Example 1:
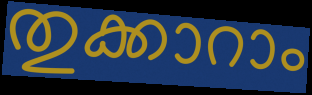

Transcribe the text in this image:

തുക്കാറാം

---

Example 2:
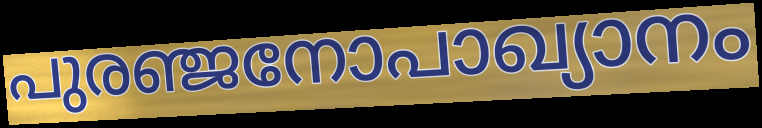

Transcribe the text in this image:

പുരഞ്ജനോപാഖ്യാനം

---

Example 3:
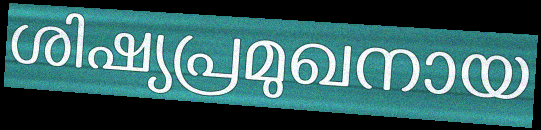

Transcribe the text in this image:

ശിഷ്യപ്രമുഖനായ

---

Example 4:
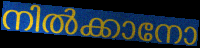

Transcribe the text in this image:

നിൽക്കാനോ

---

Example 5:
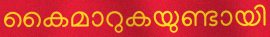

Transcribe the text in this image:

കൈമാറുകയുണ്ടായി